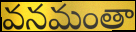
వనమంతా